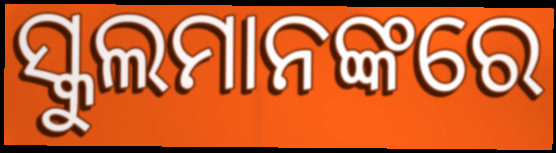
ସ୍କୁଲମାନଙ୍କରେ